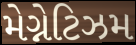
મેગ્નેટિઝમ